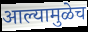
आल्यामुळेच